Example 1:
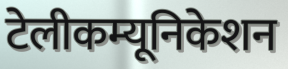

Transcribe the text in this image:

टेलीकम्‍यूनिकेशन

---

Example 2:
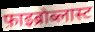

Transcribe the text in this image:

फ़ाइब्रोब्लास्ट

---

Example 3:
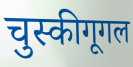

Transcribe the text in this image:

चुस्कीगूगल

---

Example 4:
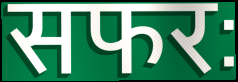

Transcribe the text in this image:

सफरः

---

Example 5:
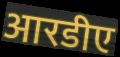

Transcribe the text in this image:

आरडीए